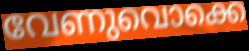
വേണുവൊക്കെ